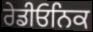
ਰੇਡੀਓਨਿਕ